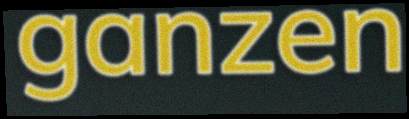
ganzen